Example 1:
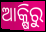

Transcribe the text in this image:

ଆକ୍ଷିରୁ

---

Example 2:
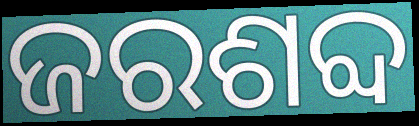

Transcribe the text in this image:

ଜରଶବ୍ଦ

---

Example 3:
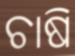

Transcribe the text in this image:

ଚାଷି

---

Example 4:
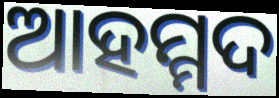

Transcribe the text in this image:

ଆହମ୍ମଦ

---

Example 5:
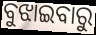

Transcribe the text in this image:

ବୁଝାଇବାରୁ